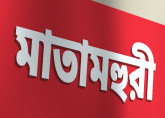
মাতামহুরী